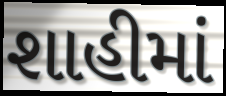
શાહીમાં